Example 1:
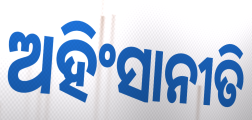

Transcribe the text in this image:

ଅହିଂସାନୀତି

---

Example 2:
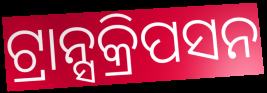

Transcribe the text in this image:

ଟ୍ରାନ୍ସକ୍ରିପସନ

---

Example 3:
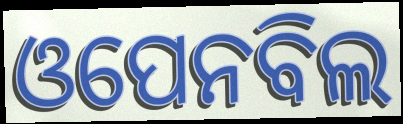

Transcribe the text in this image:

ଓପେନବିଲ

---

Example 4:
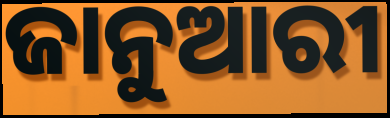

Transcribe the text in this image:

ଜାନୁଆରୀ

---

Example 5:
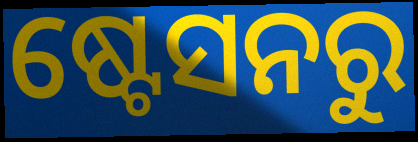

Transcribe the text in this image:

ଷ୍ଟେସନରୁ